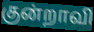
குன்றாவி